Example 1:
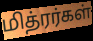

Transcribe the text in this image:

மித்ரர்கள்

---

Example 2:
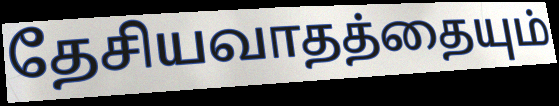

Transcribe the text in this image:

தேசியவாதத்தையும்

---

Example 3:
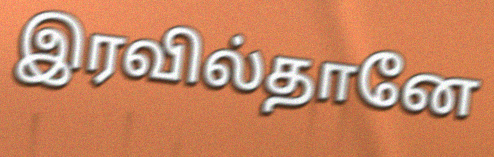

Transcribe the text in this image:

இரவில்தானே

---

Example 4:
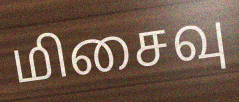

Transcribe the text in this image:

மிசைவு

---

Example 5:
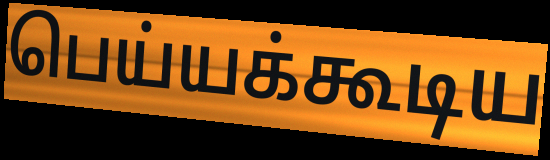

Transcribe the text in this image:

பெய்யக்கூடிய